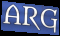
ARG